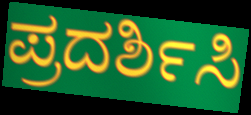
ಪ್ರದರ್ಶಿಸಿ